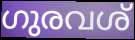
ഗുരവശ്